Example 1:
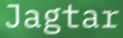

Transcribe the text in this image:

Jagtar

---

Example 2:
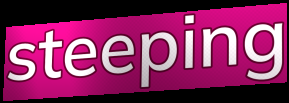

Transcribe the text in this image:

steeping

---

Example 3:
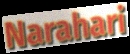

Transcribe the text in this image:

Narahari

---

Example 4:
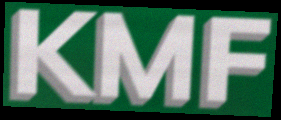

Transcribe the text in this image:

KMF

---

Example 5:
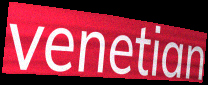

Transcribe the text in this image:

venetian